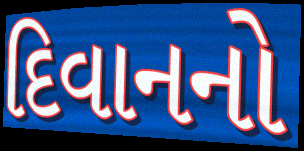
દિવાનનો